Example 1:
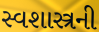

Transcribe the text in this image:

સ્વશાસ્ત્રની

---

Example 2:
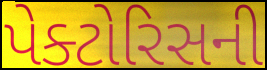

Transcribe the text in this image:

પેક્ટોરિસની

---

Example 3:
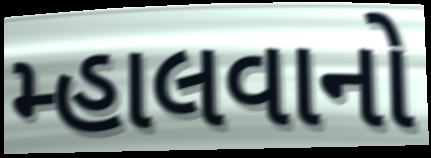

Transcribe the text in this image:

મ્હાલવાનો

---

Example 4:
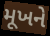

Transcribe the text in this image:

મૂખને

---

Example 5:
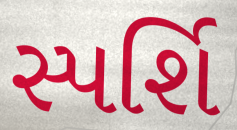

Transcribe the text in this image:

સ્પર્શિ